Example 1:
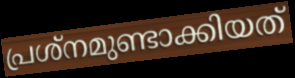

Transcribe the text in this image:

പ്രശ്നമുണ്ടാക്കിയത്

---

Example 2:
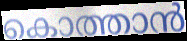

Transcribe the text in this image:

കൊത്താൻ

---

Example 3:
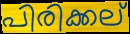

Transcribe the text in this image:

പിരിക്കല്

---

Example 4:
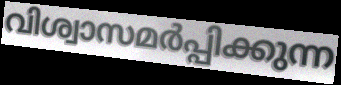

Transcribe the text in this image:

വിശ്വാസമർപ്പിക്കുന്ന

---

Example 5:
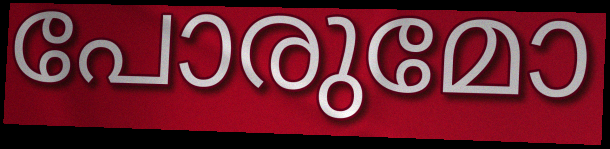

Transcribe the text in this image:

പോരുമോ